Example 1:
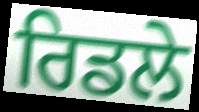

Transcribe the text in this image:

ਰਿਡਲੇ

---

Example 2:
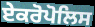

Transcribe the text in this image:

ਏਕਰੋਪੋਲਿਸ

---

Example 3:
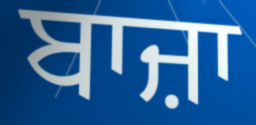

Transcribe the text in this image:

ਬਾਜ਼ਾ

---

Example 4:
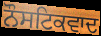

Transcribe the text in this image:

ਨੌਸਟਿਕਵਾਦ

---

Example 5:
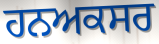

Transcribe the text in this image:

ਹਨਅਕਸਰ